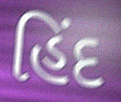
હિંદ